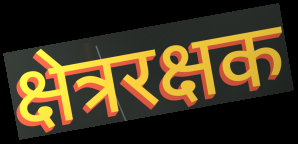
क्षेत्ररक्षक